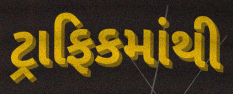
ટ્રાફિકમાંથી